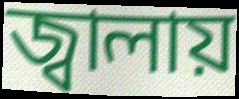
জ্বালায়